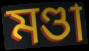
মণ্ডা